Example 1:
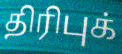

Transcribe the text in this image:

திரிபுக்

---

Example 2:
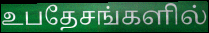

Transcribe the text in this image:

உபதேசங்களில்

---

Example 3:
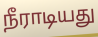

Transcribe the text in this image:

நீராடியது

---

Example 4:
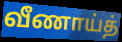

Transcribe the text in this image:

வீணாய்த்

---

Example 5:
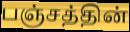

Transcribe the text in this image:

பஞ்சத்தின்